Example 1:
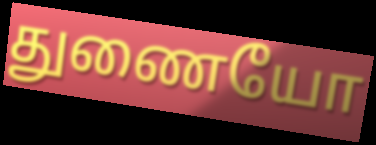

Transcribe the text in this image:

துணையோ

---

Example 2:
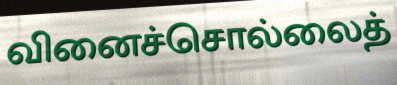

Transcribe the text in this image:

வினைச்சொல்லைத்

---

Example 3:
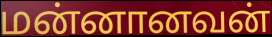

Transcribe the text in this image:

மன்னானவன்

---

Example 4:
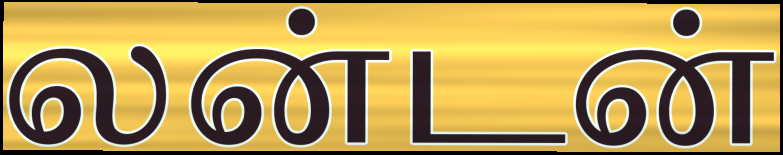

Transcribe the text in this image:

லன்டன்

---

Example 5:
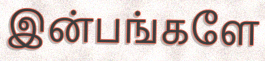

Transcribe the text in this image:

இன்பங்களே